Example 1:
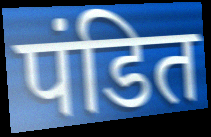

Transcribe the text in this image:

पंडित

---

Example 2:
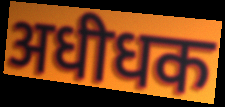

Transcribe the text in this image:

अधीधक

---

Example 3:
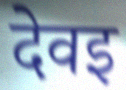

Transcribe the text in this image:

देवइ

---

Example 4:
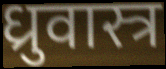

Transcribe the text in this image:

ध्रुवास्त्र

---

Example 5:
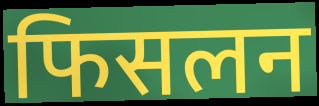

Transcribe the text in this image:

फिसलन